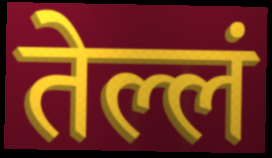
तेल्लं